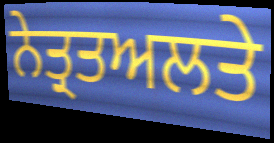
ਨੇਤ੍ਰਤਅਲਤੇ